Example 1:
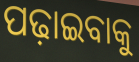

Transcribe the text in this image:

ପଢ଼ାଇବାକୁ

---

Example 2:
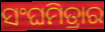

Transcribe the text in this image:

ସଂଘମିତ୍ରାର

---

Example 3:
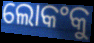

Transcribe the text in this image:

ଲୋକଂକୁ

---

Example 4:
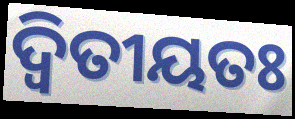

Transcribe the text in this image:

ଦ୍ବିତୀୟତଃ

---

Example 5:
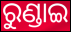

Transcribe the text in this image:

ରୁଣ୍ଡାଇ